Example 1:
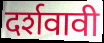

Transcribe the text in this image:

दर्शवावी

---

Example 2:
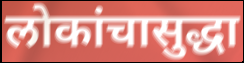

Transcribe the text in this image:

लोकांचासुद्धा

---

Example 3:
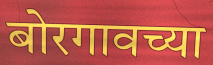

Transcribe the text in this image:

बोरगावच्या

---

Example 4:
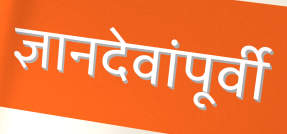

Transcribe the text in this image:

ज्ञानदेवांपूर्वी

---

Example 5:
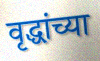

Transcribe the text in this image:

वृद्धांच्या